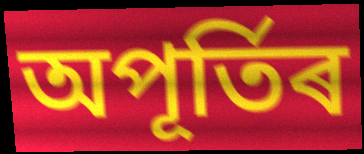
অপূৰ্তিৰ